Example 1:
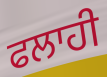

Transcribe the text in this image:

ਫਲਾਹੀ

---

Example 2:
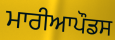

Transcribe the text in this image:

ਮਾਰੀਆਪੌਡਸ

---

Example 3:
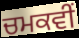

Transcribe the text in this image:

ਚਮਕਵੀਂ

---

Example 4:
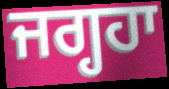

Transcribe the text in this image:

ਜਗ੍ਹਹਾ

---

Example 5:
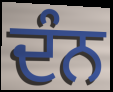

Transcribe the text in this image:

ਦੰਨ